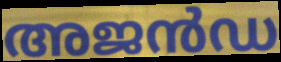
അജൻഡ